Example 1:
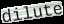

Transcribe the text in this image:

dilute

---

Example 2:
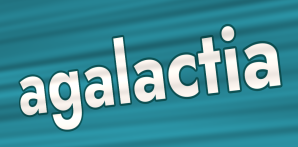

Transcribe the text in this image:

agalactia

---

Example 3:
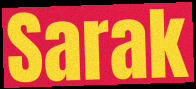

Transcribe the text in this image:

Sarak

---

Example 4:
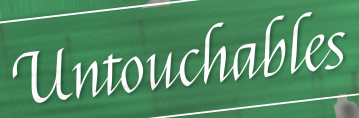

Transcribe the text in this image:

Untouchables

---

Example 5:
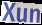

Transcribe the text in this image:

Xun